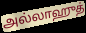
அல்லாஹுத்